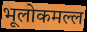
भूलोकमल्ल